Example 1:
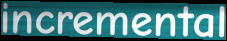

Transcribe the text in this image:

incremental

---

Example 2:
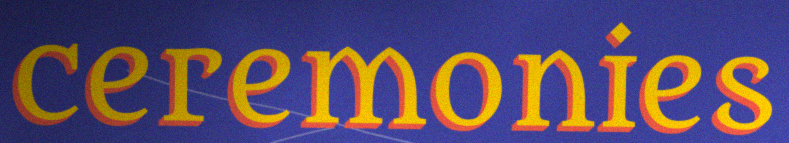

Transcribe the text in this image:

ceremonies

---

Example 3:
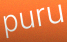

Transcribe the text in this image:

puru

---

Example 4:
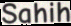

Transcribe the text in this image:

Sahih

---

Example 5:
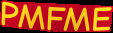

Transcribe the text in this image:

PMFME